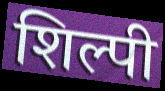
शिल्पी